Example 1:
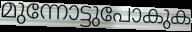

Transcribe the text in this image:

മുന്നോട്ടുപോകുക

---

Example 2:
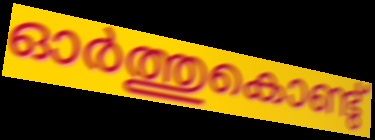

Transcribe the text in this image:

ഓർത്തുകൊണ്ടു്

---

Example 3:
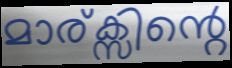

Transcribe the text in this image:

മാര്ക്സിന്റെ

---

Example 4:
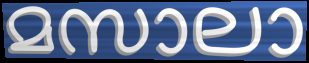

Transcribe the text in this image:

മസാലാ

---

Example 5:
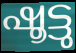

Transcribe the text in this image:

ഷൂട്ടു